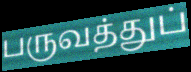
பருவத்துப்